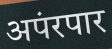
अपंरपार